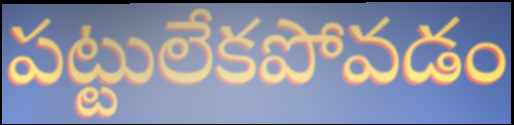
పట్టులేకపోవడం